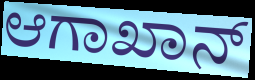
ಆಗಾಖಾನ್